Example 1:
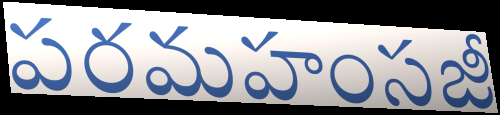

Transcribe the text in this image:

పరమహంసజీ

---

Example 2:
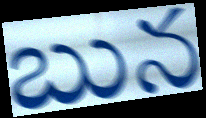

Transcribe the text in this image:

బున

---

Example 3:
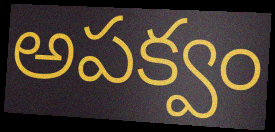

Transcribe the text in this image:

అపక్వం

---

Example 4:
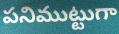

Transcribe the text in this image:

పనిముట్టుగా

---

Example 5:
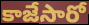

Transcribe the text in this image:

కాజేసారో